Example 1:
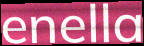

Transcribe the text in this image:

enella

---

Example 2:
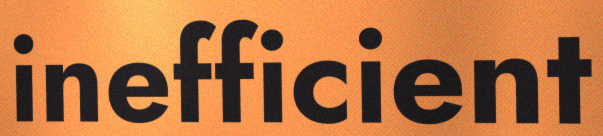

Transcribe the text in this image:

inefficient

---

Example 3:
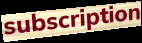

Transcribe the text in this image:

subscription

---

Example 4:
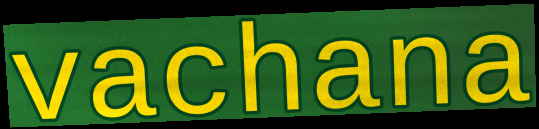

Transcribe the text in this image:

vachana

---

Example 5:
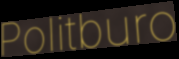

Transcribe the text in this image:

Politburo